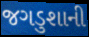
જગડુશાની